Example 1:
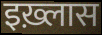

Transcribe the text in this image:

इख़्लास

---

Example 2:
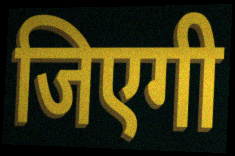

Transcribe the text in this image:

जिएगी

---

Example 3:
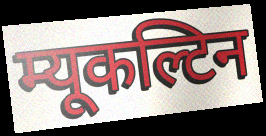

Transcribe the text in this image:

म्यूकल्टिन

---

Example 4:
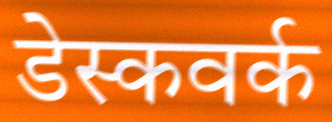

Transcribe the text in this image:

डेस्कवर्क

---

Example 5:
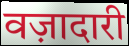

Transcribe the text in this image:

वज़ादारी